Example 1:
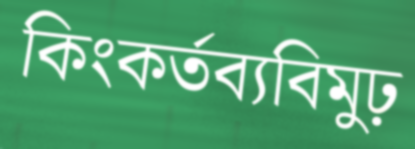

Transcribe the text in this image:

কিংকর্তব্যবিমুঢ়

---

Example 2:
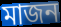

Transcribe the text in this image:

মাজন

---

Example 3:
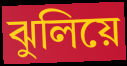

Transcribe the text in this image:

ঝুলিয়ে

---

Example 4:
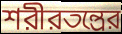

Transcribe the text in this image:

শরীরতন্ত্রের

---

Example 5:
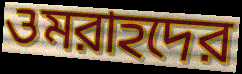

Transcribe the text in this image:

ওমরাহদের